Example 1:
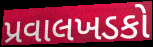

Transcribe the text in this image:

પ્રવાલખડકો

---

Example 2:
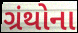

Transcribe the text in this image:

ગ્રંથોના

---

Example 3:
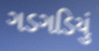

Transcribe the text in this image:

ગડગડિયું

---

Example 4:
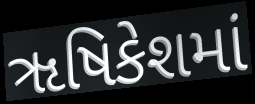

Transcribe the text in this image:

ૠષિકેશમાં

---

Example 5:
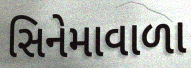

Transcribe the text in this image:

સિનેમાવાળા